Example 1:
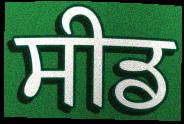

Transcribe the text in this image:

ਸੀਡ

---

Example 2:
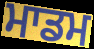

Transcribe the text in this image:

ਮਾਡਮ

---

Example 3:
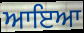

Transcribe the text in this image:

ਆਇਆ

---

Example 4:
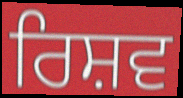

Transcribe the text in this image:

ਰਿਸ਼ਵ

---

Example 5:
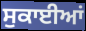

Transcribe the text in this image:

ਸੁਕਾਈਆਂ